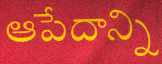
ఆపేదాన్ని